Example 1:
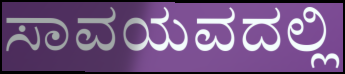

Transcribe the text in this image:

ಸಾವಯವದಲ್ಲಿ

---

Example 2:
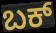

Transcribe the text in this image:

ಬಕ್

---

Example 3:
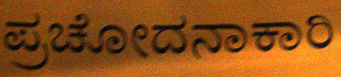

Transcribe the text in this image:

ಪ್ರಚೋದನಾಕಾರಿ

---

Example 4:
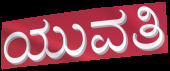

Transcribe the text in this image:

ಯುವತಿ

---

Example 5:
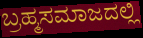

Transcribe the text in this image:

ಬ್ರಹ್ಮಸಮಾಜದಲ್ಲಿ